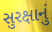
સુરક્ષાનું